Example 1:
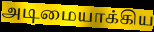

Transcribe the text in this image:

அடிமையாக்கிய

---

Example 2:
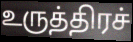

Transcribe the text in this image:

உருத்திரச்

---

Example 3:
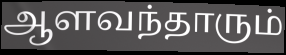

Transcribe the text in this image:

ஆளவந்தாரும்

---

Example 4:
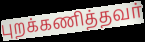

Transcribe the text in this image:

புறக்கணித்தவர்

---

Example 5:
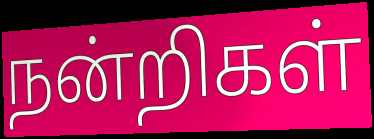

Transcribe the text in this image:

நன்றிகள்